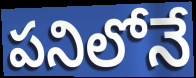
పనిలోనే